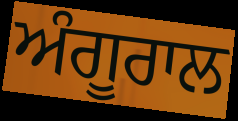
ਅੰਗੂਰਾਲ